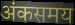
अंकसमय